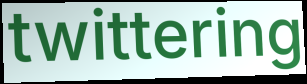
twittering